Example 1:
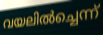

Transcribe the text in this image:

വയലിൽച്ചെന്ന്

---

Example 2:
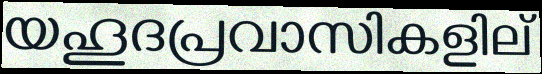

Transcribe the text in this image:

യഹൂദപ്രവാസികളില്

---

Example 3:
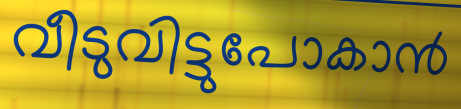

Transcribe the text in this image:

വീടുവിട്ടുപോകാൻ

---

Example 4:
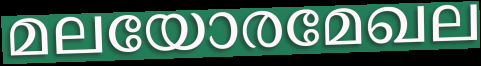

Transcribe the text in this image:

മലയോരമേഖല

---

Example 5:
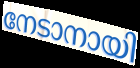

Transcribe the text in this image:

നേടാനായി